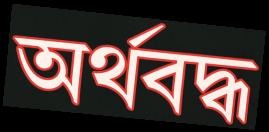
অর্থবদ্ধ